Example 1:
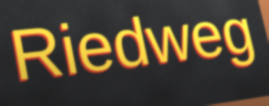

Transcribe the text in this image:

Riedweg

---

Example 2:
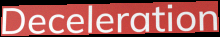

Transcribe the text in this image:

Deceleration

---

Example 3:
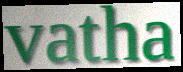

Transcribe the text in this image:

vatha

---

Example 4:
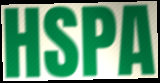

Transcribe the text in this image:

HSPA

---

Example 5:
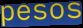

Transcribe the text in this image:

pesos